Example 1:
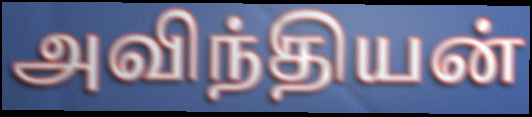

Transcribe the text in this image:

அவிந்தியன்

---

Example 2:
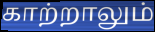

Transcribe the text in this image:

காற்றாலும்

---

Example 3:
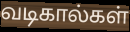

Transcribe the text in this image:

வடிகால்கள்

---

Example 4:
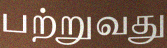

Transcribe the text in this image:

பற்றுவது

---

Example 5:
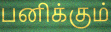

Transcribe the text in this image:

பனிக்கும்